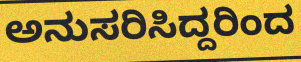
ಅನುಸರಿಸಿದ್ದರಿಂದ